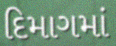
દિમાગમાં